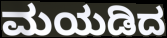
ಮಯಡಿದ